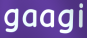
gaagi